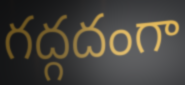
గద్గదంగా